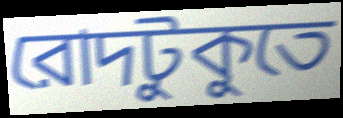
রোদটুকুতে